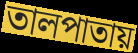
তালপাতায়